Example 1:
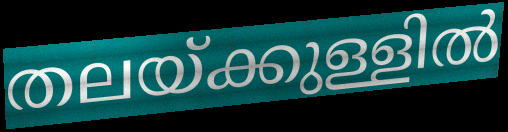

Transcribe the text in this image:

തലയ്ക്കുള്ളിൽ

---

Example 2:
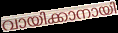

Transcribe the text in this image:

വായിക്കാനായി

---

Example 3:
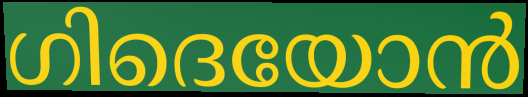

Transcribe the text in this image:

ഗിദെയോൻ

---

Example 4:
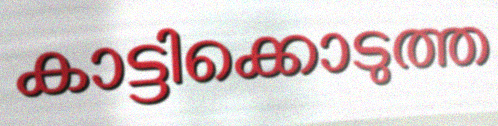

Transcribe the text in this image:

കാട്ടിക്കൊടുത്ത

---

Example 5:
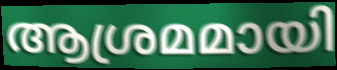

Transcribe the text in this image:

ആശ്രമമായി